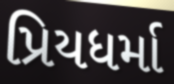
પ્રિયધર્મા